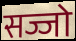
सज्जो